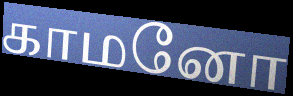
காமனோ